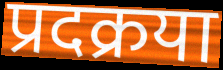
प्रदक्रया